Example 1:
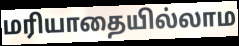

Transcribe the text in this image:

மரியாதையில்லாம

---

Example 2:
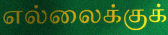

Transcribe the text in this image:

எல்லைக்குக்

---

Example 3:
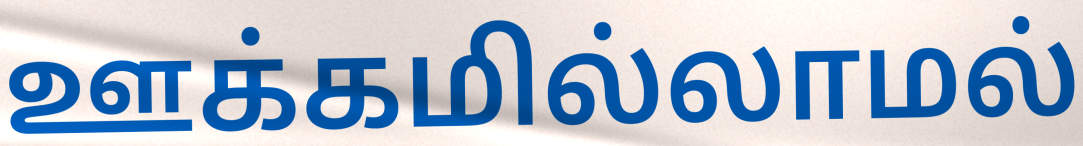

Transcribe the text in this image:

ஊக்கமில்லாமல்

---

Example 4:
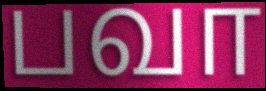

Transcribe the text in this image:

பவா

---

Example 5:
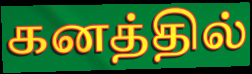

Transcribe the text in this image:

கனத்தில்